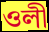
ওলী